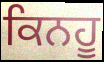
ਕਿਨਹੂ